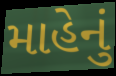
માહેનું